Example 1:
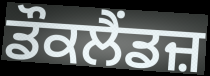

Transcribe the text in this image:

ਡੌਕਲੈਂਡਜ਼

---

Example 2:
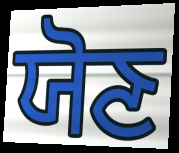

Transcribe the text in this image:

ਯੋਣ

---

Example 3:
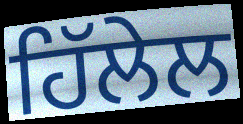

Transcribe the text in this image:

ਹਿੱਲੇਲ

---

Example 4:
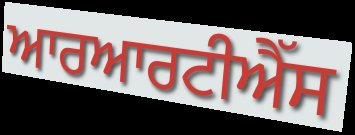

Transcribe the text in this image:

ਆਰਆਰਟੀਐੱਸ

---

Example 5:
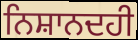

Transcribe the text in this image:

ਨਿਸ਼ਾਨਦਹੀ